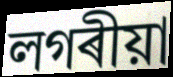
লগৰীয়া